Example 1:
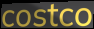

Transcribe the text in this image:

costco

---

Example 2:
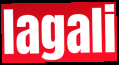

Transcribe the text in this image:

lagali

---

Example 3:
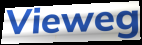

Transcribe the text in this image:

Vieweg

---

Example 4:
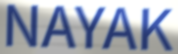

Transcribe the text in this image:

NAYAK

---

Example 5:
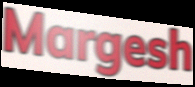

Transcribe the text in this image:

Margesh